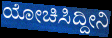
ಯೋಚಿಸಿದ್ದೀನಿ